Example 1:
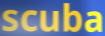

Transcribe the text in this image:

scuba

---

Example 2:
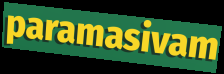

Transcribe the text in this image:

paramasivam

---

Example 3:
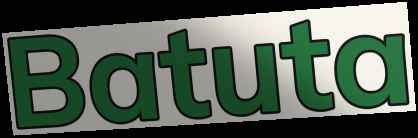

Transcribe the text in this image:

Batuta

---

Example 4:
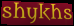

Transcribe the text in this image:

shykhs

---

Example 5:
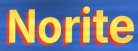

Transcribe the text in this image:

Norite